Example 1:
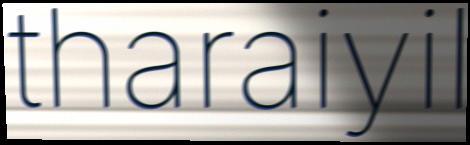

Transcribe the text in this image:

tharaiyil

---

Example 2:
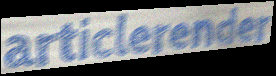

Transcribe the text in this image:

articlerender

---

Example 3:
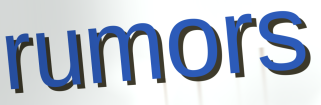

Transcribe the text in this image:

rumors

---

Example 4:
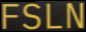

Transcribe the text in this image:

FSLN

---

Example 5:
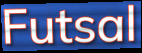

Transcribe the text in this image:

Futsal